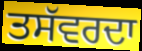
ਤਸੱਵਰਦਾ